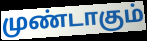
முண்டாகும்